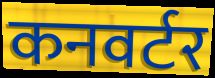
कनवर्टर